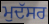
ਮੁਦੱਸਰ